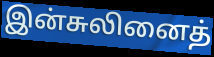
இன்சுலினைத்